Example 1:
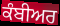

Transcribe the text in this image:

ਕੰਬੀਅਰ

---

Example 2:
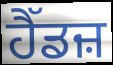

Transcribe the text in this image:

ਹੈੱਡਜ਼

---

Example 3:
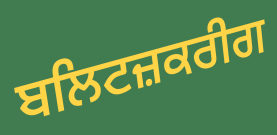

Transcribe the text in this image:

ਬਲਿਟਜ਼ਕਰੀਗ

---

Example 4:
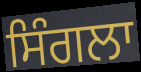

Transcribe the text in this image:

ਸਿੰਗਲਾ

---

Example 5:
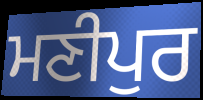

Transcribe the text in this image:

ਮਣੀਪੁਰ